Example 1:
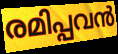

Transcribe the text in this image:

രമിപ്പവൻ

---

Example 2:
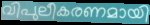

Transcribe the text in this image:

വിപുലീകരണമായി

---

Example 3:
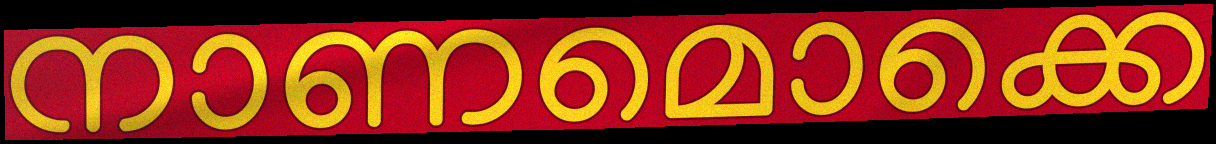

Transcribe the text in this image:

നാണമൊക്കെ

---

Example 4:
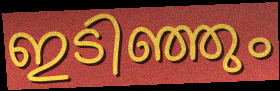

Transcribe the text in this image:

ഇടിഞ്ഞും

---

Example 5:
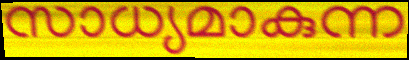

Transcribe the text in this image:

സാധ്യമാകുന്ന